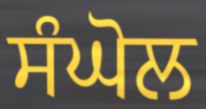
ਸੰਘੋਲ